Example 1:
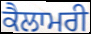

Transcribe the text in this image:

ਕੈਲਾਮਰੀ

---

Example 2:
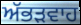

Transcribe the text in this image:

ਅੱਭੜਵਾਹ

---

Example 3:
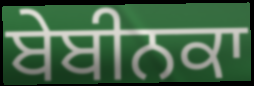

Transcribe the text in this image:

ਬੇਬੀਨਕਾ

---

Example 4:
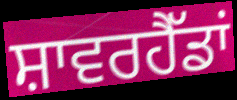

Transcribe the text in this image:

ਸ਼ਾਵਰਹੈੱਡਾਂ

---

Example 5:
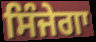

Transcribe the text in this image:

ਸਿੰਜੇਗਾ